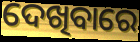
ଦେଖିବାରେ